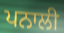
ਪਨਾਲੀ